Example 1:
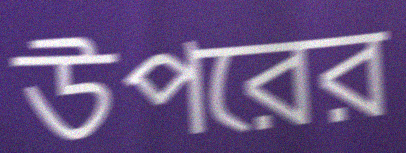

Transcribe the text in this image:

উপরের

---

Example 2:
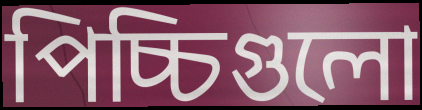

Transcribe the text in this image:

পিচ্চিগুলো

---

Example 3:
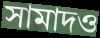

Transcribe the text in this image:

সামাদও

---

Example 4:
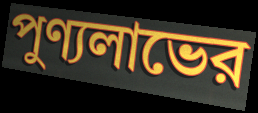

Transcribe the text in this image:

পুণ্যলাভের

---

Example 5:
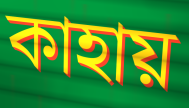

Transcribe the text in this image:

কাহায়